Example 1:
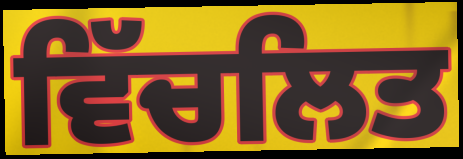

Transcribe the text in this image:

ਵਿੱਚਲਿਤ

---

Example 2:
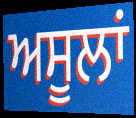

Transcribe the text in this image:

ਅਸੂਲਾਂ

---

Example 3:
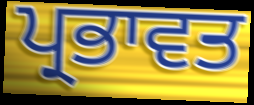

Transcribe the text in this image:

ਪ੍ਰਭਾਵਤ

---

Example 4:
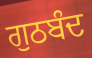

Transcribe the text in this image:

ਗੁਠਬੰਦ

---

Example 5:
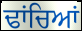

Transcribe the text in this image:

ਢਾਂਚਿਆਂ